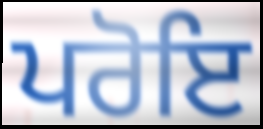
ਪਰੋਇ